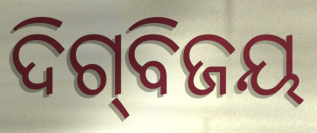
ଦିଗ୍‍ବିଜୟ